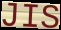
JIS